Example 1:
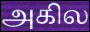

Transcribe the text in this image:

அகில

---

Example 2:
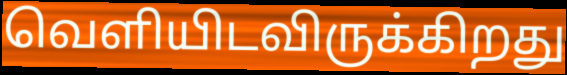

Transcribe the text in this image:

வெளியிடவிருக்கிறது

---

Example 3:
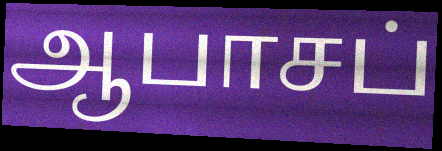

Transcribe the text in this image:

ஆபாசப்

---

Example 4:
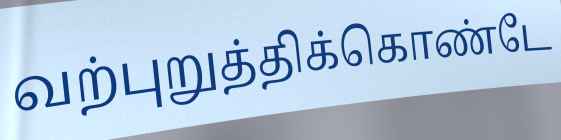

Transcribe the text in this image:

வற்புறுத்திக்கொண்டே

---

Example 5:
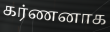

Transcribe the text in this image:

கர்ணனாக